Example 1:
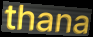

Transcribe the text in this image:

thana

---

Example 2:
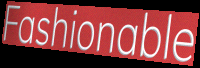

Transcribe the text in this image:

Fashionable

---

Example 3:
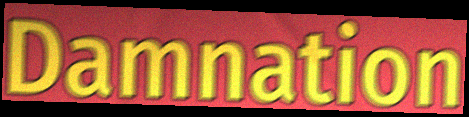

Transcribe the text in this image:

Damnation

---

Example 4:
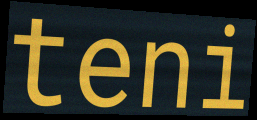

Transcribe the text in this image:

teni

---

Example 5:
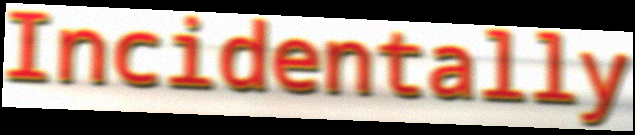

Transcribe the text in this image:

Incidentally